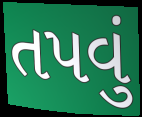
તપવું